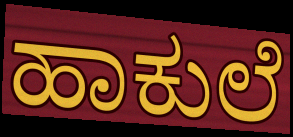
ಹಾಕುಲೆ